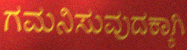
ಗಮನಿಸುವುದಕ್ಕಾಗಿ